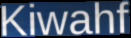
Kiwahf